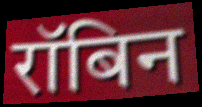
रॉबिन